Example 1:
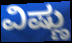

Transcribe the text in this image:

ವಿಷ್ಣು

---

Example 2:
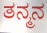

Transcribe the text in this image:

ತನ್ಮನ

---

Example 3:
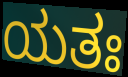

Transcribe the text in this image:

ಯತಃ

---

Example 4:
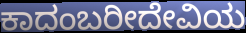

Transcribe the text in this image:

ಕಾದಂಬರೀದೇವಿಯ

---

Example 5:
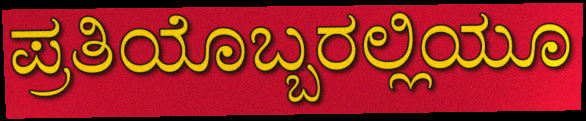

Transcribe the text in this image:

ಪ್ರತಿಯೊಬ್ಬರಲ್ಲಿಯೂ